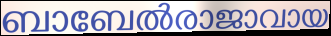
ബാബേൽരാജാവായ